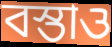
বস্তাও